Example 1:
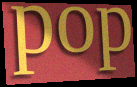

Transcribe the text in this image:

pop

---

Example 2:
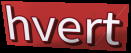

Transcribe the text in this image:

hvert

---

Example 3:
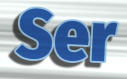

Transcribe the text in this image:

Ser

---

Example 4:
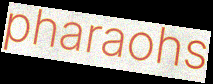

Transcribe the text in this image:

pharaohs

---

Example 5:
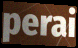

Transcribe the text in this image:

perai